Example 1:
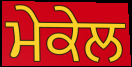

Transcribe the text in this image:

ਮੇਕੇਲ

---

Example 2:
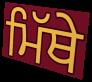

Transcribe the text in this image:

ਮਿੱਥੇ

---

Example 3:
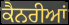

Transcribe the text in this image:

ਕੈਨਰੀਆਂ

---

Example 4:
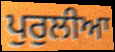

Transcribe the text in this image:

ਪੁਰੁਲੀਆ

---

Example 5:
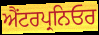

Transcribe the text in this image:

ਐਂਟਰਪ੍ਰਨਿਓਰ